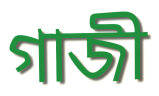
গাজী